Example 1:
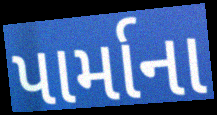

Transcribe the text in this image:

પાર્માના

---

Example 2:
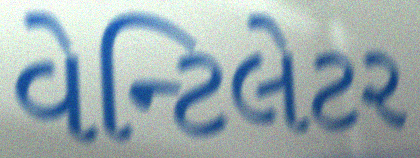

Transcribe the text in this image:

વેન્‍ટિલેટર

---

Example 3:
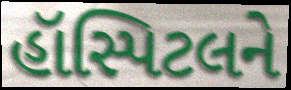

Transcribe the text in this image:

હૉસ્પિટલને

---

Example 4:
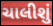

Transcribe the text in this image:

ચાલીશું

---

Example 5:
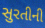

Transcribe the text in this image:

સુરતીની